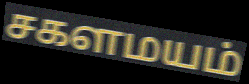
சகளமயம்